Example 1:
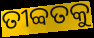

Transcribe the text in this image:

ତୀବ୍ବତକୁ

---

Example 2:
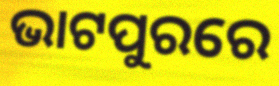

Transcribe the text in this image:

ଭାଟପୁରରେ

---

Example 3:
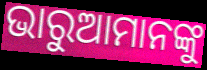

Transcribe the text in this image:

ଭାରୁଆମାନଙ୍କୁ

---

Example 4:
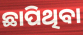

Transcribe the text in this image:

ଛାପିଥିବା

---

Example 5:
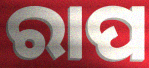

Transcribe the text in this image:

ରାପ